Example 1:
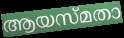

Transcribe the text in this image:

ആയസ്മതാ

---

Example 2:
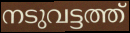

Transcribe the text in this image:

നടുവട്ടത്ത്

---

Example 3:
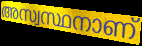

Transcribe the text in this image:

അസ്വസ്ഥനാണ്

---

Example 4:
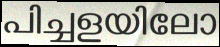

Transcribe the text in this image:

പിച്ചളയിലോ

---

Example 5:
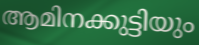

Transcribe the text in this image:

ആമിനക്കുട്ടിയും